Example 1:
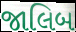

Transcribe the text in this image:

જાલિબ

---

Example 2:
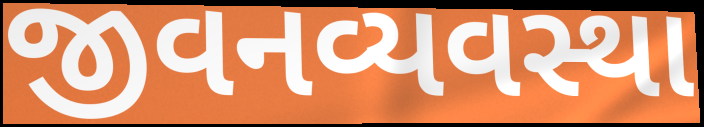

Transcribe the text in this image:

જીવનવ્યવસ્થા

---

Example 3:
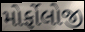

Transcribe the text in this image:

મોર્ફોલોજી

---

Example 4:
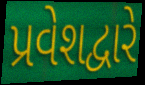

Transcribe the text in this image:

પ્રવેશદ્વારે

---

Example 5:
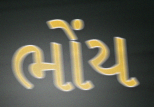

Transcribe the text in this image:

ભોંય